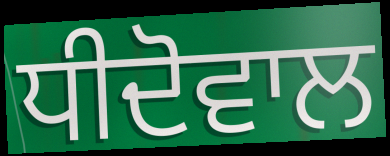
ਧੀਦੋਵਾਲ